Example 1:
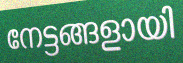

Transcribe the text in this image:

നേട്ടങ്ങളായി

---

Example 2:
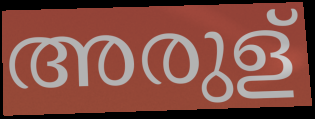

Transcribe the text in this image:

അരുള്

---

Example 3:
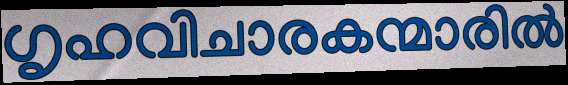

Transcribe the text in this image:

ഗൃഹവിചാരകന്മാരിൽ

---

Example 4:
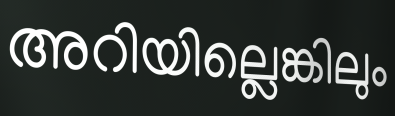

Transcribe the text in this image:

അറിയില്ലെങ്കിലും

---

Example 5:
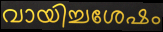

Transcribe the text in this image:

വായിച്ചശേഷം